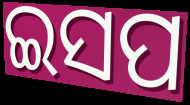
ଇସପ